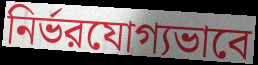
নির্ভরযোগ্যভাবে